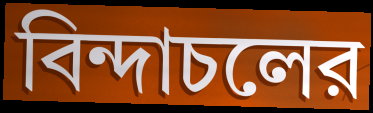
বিন্দাচলের